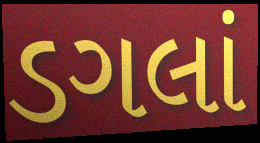
ડગલાં